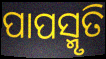
ପାପସ୍ମୃତି